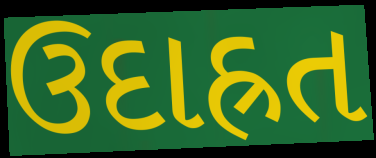
ઉદાહ્રત